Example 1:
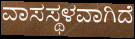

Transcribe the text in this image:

ವಾಸಸ್ಥಳವಾಗಿದೆ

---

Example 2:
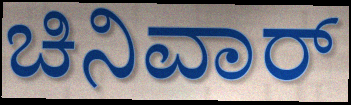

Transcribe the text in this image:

ಚಿನಿವಾರ್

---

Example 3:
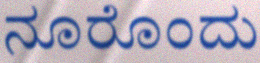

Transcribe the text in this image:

ನೂರೊಂದು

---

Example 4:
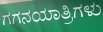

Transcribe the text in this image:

ಗಗನಯಾತ್ರಿಗಳು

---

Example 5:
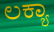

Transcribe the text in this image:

ಲಕ್ಯಾ